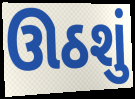
ઊઠશું